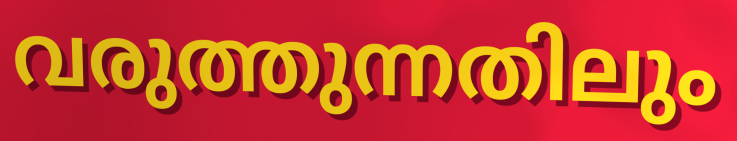
വരുത്തുന്നതിലും